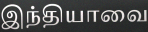
இந்தியாவை